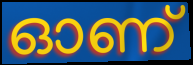
ഓണ്